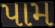
પામ